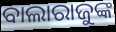
ବାଲାରାଜୁଙ୍କ